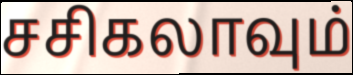
சசிகலாவும்